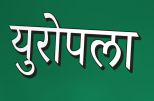
युरोपला